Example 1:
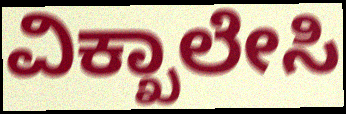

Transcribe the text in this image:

ವಿಕ್ಖಾಲೇಸಿ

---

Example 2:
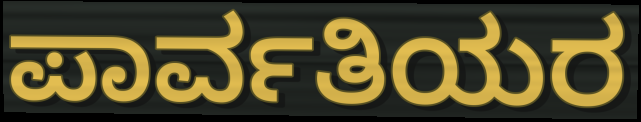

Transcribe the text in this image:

ಪಾರ್ವತಿಯರ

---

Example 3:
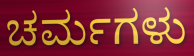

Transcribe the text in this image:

ಚರ್ಮಗಳು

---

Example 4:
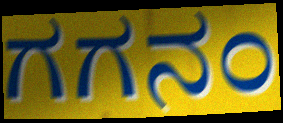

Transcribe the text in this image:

ಗಗನಂ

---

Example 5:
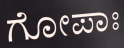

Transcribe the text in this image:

ಗೋಪಾಃ